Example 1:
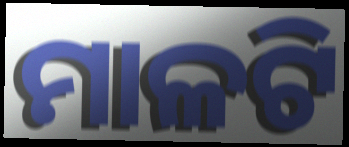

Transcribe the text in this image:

ମାଳଟି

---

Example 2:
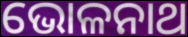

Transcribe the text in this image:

ଭୋଳନାଥ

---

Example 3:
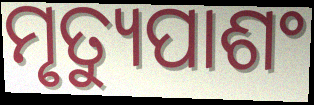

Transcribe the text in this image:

ମୃତ୍ୟୁପାଶଂ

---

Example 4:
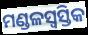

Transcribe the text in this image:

ମଣ୍ଡଳସ୍ୱସ୍ତିକ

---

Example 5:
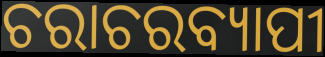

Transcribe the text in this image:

ଚରାଚରବ୍ୟାପୀ